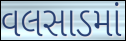
વલસાડમાં